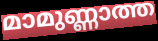
മാമുണ്ണാത്ത